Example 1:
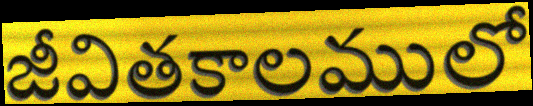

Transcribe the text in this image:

జీవితకాలములో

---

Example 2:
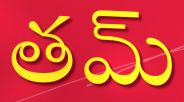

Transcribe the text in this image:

తమ్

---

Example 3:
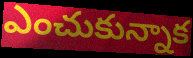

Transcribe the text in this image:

ఎంచుకున్నాక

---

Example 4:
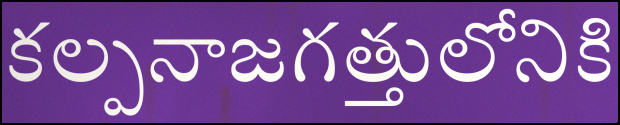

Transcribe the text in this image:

కల్పనాజగత్తులోనికి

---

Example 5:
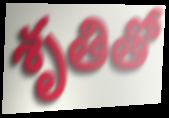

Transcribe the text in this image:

శృతితో